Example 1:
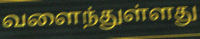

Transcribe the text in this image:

வளைந்துள்ளது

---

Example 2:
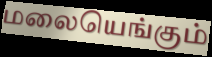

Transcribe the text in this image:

மலையெங்கும்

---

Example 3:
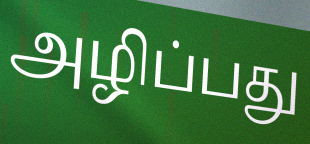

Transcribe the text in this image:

அழிப்பது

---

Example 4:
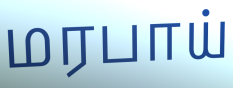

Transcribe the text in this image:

மரபாய்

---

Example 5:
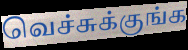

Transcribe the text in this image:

வெச்சுக்குங்க